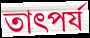
তাৎপৰ্য